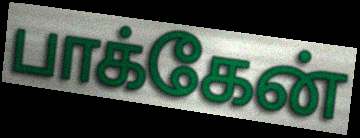
பாக்கேன்